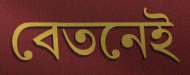
বেতনেই